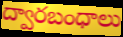
ద్వారబంధాలు